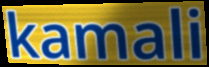
kamali